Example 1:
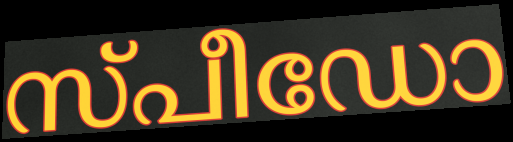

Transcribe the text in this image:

സ്പീഡോ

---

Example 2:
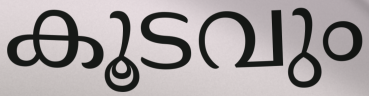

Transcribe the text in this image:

കൂടവും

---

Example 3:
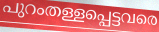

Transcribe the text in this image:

പുറംതള്ളപ്പെട്ടവരെ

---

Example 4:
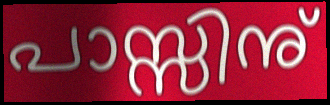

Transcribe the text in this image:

പാസ്സിനു്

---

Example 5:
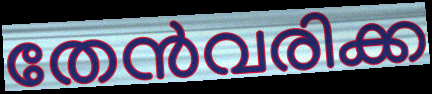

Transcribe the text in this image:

തേൻവരിക്ക